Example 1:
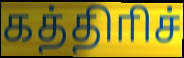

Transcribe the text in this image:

கத்திரிச்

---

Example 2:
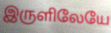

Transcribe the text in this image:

இருளிலேயே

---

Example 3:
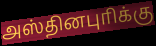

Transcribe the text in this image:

அஸ்தினபுரிக்கு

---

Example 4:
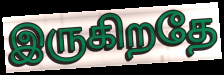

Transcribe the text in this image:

இருகிறதே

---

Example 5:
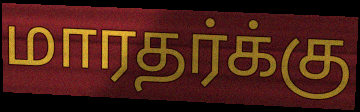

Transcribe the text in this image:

மாரதர்க்கு